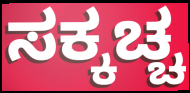
ಸಕ್ಕಚ್ಚ